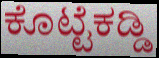
ಕೊಟ್ಟೆಕಡ್ಡಿ